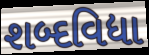
શબ્દવિદ્યા